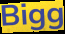
Bigg